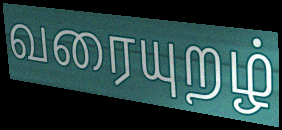
வரையுறழ்